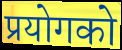
प्रयोगको